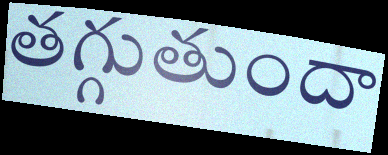
తగ్గుతుందా